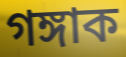
গঙ্গাক